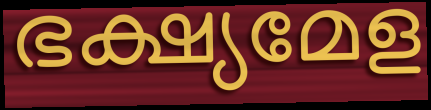
ഭക്ഷ്യമേള